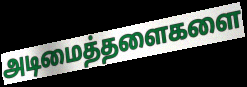
அடிமைத்தளைகளை